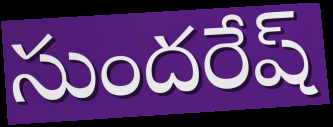
సుందరేష్